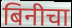
बिनीचा